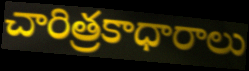
చారిత్రకాధారాలు